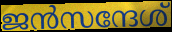
ജൻസന്ദേശ്